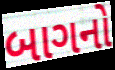
બાગનો